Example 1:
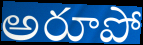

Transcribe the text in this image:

అరూపో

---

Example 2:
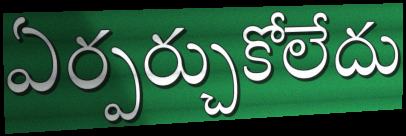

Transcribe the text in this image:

ఏర్పర్చుకోలేదు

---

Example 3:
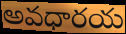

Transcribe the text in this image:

అవధారయ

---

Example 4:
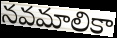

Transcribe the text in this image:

నవమాలికా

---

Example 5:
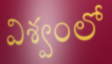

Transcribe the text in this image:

విశ్వంలో